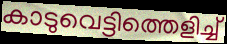
കാടുവെട്ടിത്തെളിച്ച്